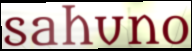
sahuno